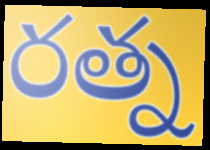
రత్న